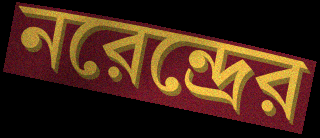
নরেন্দ্রের